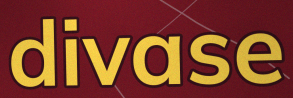
divase